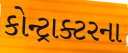
કોન્ટ્રાક્ટરના